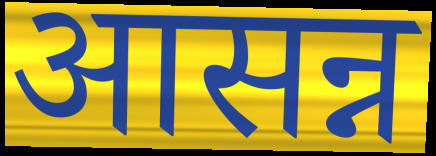
आसन्न